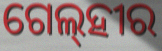
ଗେଲ୍‌ହୀର